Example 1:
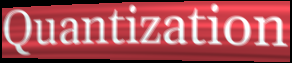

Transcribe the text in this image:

Quantization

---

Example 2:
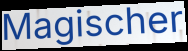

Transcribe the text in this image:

Magischer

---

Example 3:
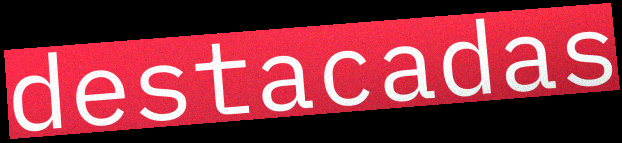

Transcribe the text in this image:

destacadas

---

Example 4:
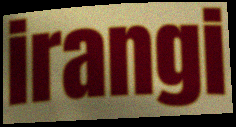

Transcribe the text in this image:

irangi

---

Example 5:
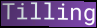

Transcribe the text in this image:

Tilling